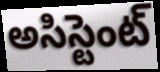
అసిస్టెంట్